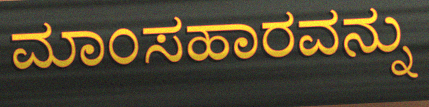
ಮಾಂಸಹಾರವನ್ನು